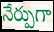
నేర్పుగా